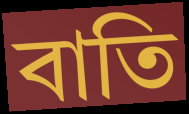
বাতি